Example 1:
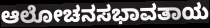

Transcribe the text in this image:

ಆಲೋಚನಸಭಾವತಾಯ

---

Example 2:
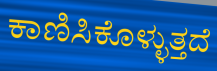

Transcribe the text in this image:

ಕಾಣಿಸಿಕೊಳ್ಳುತ್ತದೆ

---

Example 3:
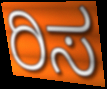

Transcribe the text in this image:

ರಿಸ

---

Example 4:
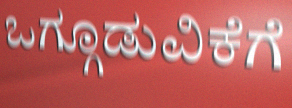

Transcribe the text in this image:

ಒಗ್ಗೂಡುವಿಕೆಗೆ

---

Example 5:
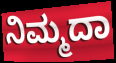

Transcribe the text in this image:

ನಿಮ್ಮದಾ